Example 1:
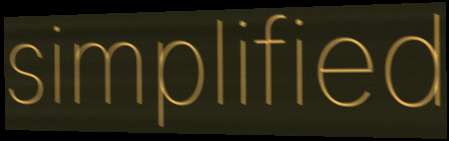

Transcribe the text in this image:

simplified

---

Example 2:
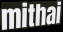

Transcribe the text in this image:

mithai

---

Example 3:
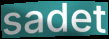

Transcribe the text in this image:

sadet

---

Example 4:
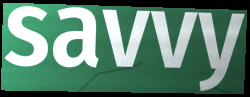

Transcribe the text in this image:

savvy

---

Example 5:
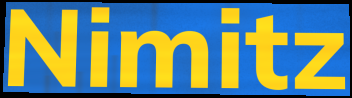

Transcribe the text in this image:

Nimitz